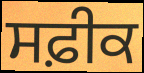
ਸਫ਼ੀਕ